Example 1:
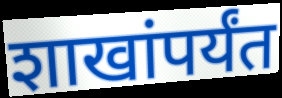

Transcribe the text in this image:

शाखांपर्यंत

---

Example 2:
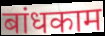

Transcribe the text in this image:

बांधकाम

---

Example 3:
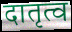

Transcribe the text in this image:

दातृत्व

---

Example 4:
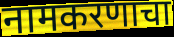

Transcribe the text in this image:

नामकरणाचा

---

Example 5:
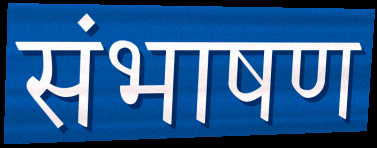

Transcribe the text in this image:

संभाषण